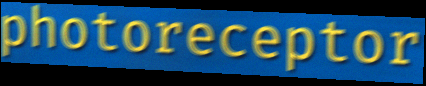
photoreceptor